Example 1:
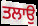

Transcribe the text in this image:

ਤਲਾਉ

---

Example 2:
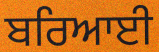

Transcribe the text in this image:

ਬਰਿਆਈ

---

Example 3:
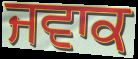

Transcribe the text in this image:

ਜਵਾਕ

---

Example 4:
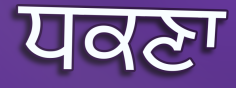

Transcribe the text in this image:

ਧਕਣਾ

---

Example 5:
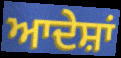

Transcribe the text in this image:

ਆਦੇਸ਼ਾਂ